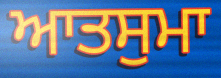
ਆਤਸੁਮਾ